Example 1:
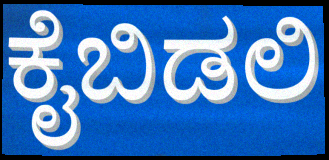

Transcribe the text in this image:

ಕೈಬಿಡಲಿ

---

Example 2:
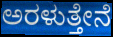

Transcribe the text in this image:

ಅರಳುತ್ತೇನೆ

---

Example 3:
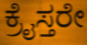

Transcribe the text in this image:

ಕ್ರೈಸ್ತರೇ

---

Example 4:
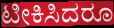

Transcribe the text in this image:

ಟೀಕಿಸಿದರೂ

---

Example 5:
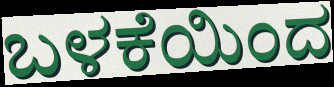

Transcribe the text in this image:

ಬಳಕೆಯಿಂದ